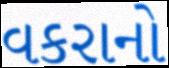
વકરાનો